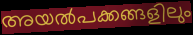
അയൽപക്കങ്ങളിലും